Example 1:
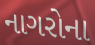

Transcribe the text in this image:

નાગરોના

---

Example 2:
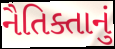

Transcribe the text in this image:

નૈતિક્તાનું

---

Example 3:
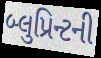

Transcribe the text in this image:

બ્લુપ્રિન્ટની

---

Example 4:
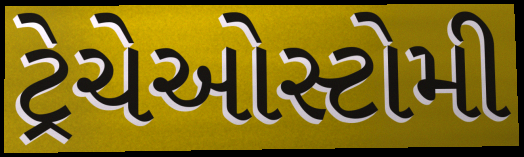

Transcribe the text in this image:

ટ્રેચેઓસ્ટોમી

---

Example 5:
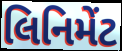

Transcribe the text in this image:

લિનિમેંટ